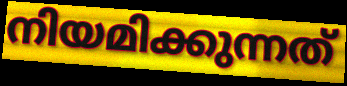
നിയമിക്കുന്നത്